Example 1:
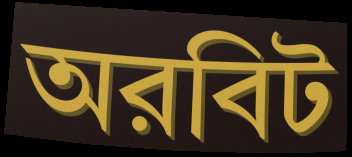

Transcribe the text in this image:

অরবিট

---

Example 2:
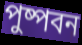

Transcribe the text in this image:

পুষ্পবন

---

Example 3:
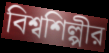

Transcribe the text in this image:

বিশ্বশিল্পীর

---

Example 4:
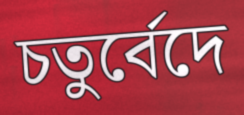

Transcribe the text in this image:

চতুর্বেদে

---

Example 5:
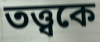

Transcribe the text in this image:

তত্ত্বকে